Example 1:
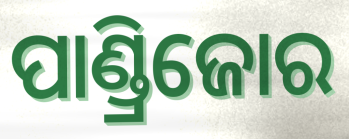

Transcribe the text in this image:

ପାଣ୍ଡ୍ରିଜୋର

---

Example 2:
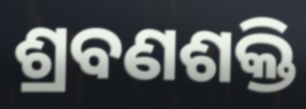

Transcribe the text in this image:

ଶ୍ରବଣଶକ୍ତି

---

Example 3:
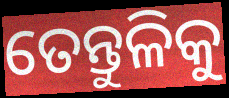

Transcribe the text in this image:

ତେନ୍ତୁଳିକୁ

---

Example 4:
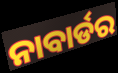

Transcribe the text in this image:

ନାବାର୍ଡର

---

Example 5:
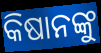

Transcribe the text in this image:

କିଷାନଙ୍କୁ